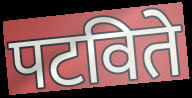
पटविते